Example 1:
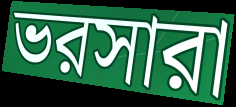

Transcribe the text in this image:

ভরসারা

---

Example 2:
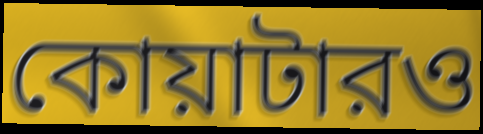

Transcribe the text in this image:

কোয়াটারও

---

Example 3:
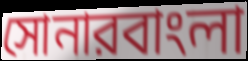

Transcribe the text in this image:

সোনারবাংলা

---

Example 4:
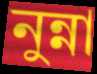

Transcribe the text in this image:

নুন্না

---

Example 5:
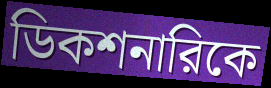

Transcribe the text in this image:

ডিকশনারিকে